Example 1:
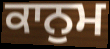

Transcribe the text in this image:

ਕਾਨੁਮ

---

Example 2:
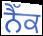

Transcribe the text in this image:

ਨੈੱਕ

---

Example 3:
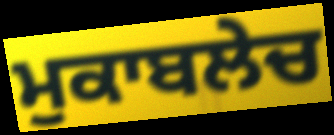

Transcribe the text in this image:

ਮੁਕਾਬਲੇਚ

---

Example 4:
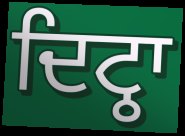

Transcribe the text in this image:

ਦਿਟ੍ਠਾ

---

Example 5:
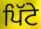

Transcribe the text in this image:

ਪਿੱਟੇ